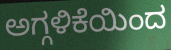
ಅಗ್ಗಳಿಕೆಯಿಂದ